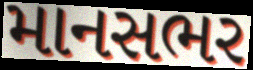
માનસભર